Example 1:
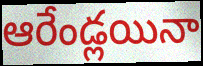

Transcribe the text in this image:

ఆరేండ్లయినా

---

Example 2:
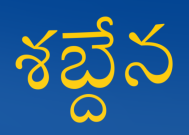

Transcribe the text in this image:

శబ్దేన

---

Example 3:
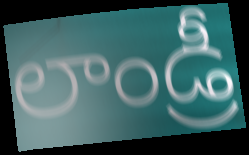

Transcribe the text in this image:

లాండ్రీ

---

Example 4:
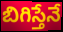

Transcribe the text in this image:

బిగిస్తేనే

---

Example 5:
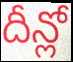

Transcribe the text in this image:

దీన్లో